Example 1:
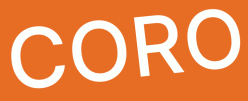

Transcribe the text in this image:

CORO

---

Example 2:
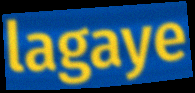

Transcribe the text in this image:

lagaye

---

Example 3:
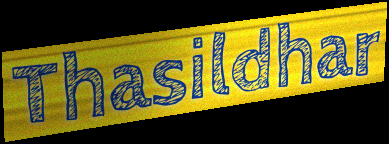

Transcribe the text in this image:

Thasildhar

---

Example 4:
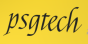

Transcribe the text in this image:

psgtech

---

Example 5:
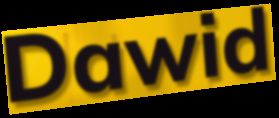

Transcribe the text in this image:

Dawid